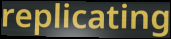
replicating